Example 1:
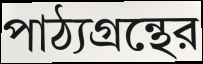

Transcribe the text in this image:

পাঠ্যগ্রন্থের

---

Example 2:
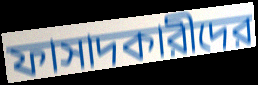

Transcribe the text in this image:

ফাসাদকারীদের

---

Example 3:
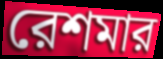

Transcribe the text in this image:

রেশমার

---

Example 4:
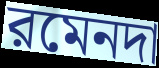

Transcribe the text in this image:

রমেনদা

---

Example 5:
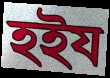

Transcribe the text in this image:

হইয